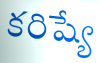
కరిష్యే